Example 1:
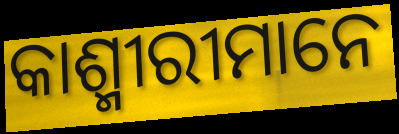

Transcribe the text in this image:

କାଶ୍ମୀରୀମାନେ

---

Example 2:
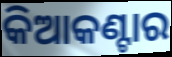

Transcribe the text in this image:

କିଆକଣ୍ଟାର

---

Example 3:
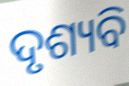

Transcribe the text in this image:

ଦୃଶ୍ୟବି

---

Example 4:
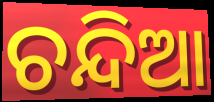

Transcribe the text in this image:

ଚନ୍ଦିଆ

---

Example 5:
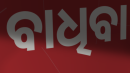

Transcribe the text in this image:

ବାଧିବା